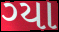
ગ્યા